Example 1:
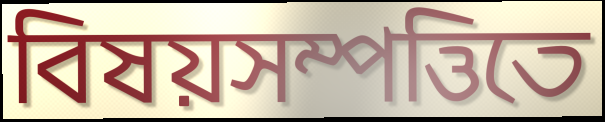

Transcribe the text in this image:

বিষয়সম্পত্তিতে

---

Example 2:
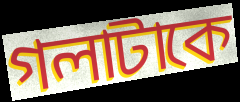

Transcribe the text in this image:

গলাটাকে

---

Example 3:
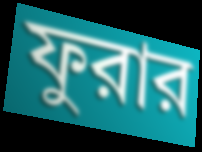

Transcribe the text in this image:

ফুরার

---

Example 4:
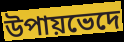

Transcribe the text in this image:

উপায়ভেদে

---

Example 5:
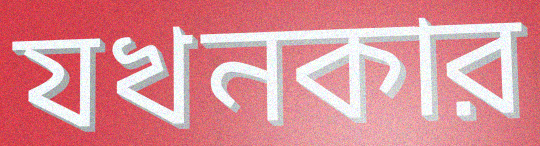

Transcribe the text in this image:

যখনকার